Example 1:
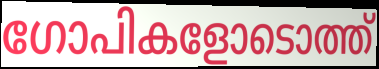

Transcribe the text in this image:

ഗോപികളോടൊത്ത്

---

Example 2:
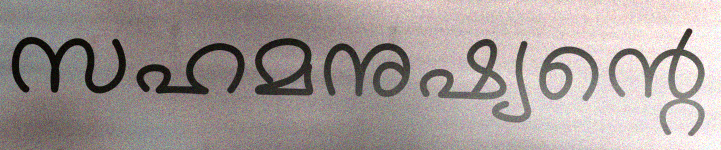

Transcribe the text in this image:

സഹമനുഷ്യന്റെ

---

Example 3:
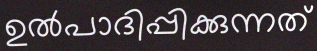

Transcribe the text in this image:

ഉൽപാദിപ്പിക്കുന്നത്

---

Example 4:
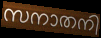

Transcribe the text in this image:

സനാതനി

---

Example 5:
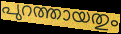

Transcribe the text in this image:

പുറത്തായതും